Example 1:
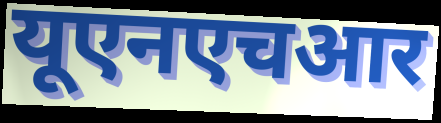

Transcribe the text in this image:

यूएनएचआर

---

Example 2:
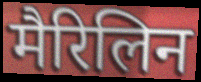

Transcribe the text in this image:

मैरिलिन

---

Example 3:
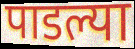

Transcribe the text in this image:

पाडल्या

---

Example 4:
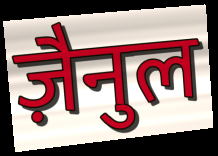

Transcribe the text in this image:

ज़ैनुल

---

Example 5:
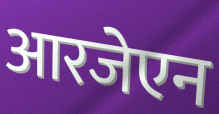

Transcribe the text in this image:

आरजेएन